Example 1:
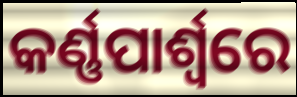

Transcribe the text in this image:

କର୍ଣ୍ଣପାର୍ଶ୍ୱରେ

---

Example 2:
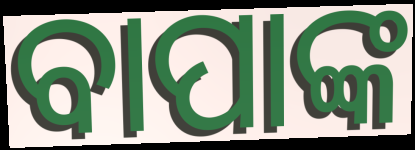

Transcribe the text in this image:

ବାପାଙ୍କ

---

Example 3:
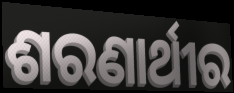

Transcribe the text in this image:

ଶରଣାର୍ଥୀର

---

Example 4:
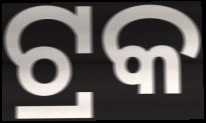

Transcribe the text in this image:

ଟ୍ରକ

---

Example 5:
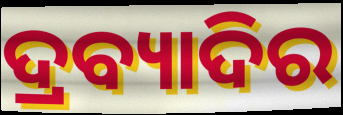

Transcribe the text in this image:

ଦ୍ରବ୍ୟାଦିର